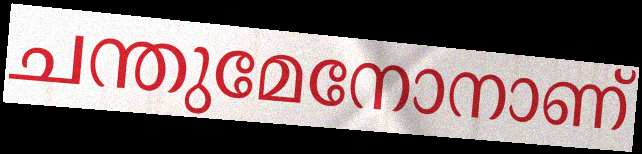
ചന്തുമേനോനാണ്